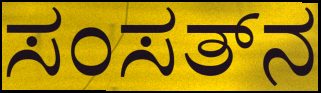
ಸಂಸತ್‌ನ